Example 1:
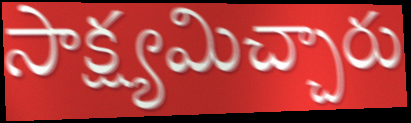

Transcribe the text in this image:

సాక్ష్యమిచ్చారు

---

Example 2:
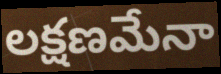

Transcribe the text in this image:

లక్షణమేనా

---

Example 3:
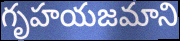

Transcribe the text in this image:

గృహయజమాని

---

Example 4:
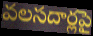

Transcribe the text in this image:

వలసదార్లపై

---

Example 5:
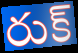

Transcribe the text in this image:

రుక్